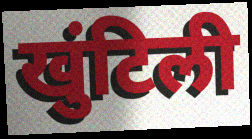
खुंटिली